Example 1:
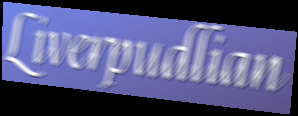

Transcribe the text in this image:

Liverpudlian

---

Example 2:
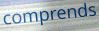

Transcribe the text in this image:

comprends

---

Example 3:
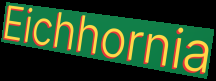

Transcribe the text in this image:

Eichhornia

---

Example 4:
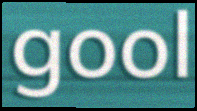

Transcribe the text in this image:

gool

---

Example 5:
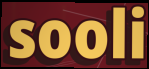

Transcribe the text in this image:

sooli